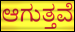
ಆಗುತ್ತವೆ